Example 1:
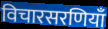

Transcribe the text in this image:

विचारसरणियाँ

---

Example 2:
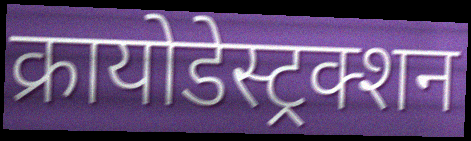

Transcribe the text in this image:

क्रायोडेस्ट्रक्शन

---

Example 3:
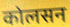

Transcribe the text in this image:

कोलसन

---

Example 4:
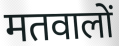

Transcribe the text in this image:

मतवालों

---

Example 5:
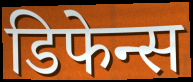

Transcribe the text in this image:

डिफेन्स